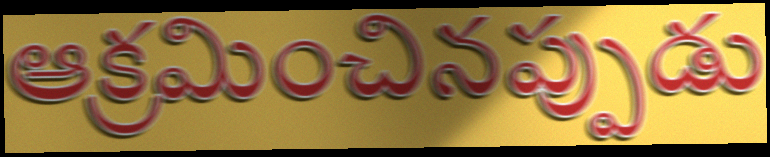
ఆక్రమించినప్పుడు